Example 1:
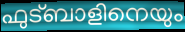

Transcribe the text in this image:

ഫുട്ബാളിനെയും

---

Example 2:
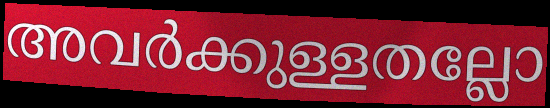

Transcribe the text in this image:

അവർക്കുള്ളതല്ലോ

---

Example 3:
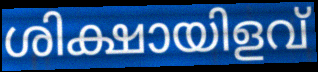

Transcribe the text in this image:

ശിക്ഷായിളവ്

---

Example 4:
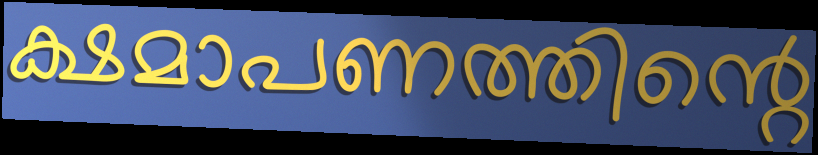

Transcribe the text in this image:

ക്ഷമാപണത്തിന്റെ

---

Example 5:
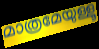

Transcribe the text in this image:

മാത്രമേയുള്ളൂ